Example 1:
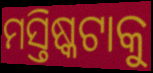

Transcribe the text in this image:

ମସ୍ତିଷ୍କଟାକୁ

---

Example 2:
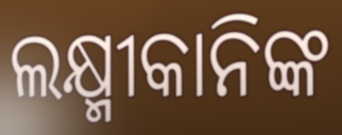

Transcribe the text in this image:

ଲକ୍ଷ୍ମୀକାନିଙ୍କ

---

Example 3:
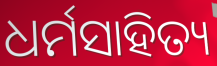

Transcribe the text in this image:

ଧର୍ମସାହିତ୍ୟ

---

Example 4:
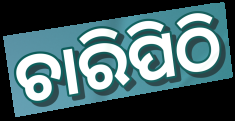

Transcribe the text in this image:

ଚାରିପିଠି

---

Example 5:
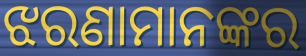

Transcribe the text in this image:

ଝରଣାମାନଙ୍କର